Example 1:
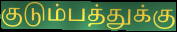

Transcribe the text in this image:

குடும்பத்துக்கு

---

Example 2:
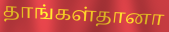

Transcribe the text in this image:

தாங்கள்தானா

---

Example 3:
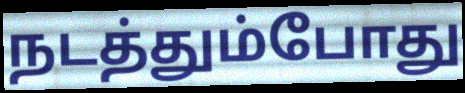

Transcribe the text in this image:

நடத்தும்போது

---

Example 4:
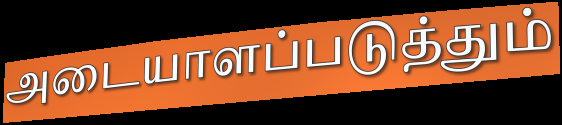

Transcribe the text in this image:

அடையாளப்படுத்தும்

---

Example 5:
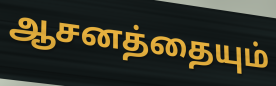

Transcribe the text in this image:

ஆசனத்தையும்